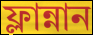
ফ্লান্নান